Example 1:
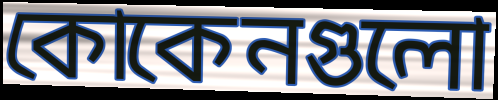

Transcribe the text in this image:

কোকেনগুলো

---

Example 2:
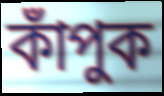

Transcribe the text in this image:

কাঁপুক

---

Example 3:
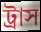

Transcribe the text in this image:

ট্রাস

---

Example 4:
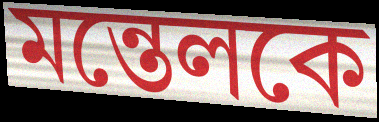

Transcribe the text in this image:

মন্তেলকে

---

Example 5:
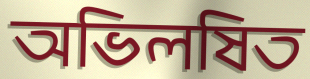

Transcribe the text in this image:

অভিলষিত